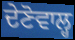
ਦੇਣੋਵਾਲ੍ਹ